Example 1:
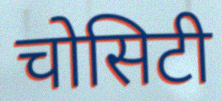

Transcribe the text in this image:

चोसिटी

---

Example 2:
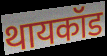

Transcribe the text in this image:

थायकॉड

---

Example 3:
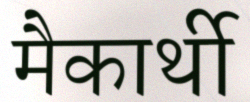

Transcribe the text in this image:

मैकार्थी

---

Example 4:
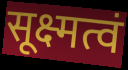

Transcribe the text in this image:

सूक्ष्मत्वं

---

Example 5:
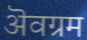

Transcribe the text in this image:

ऄवग्रम